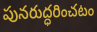
పునరుద్ధరించటం